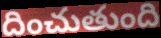
దించుతుంది